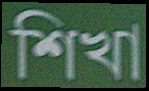
শিখা